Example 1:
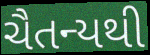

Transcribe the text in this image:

ચૈતન્યથી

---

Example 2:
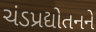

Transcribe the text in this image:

ચંડપ્રદ્યોતનને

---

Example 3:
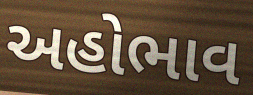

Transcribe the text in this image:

અહોભાવ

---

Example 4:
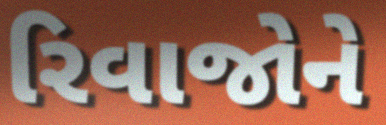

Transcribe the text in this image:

રિવાજોને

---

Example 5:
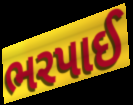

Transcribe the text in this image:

ભરપાઈ